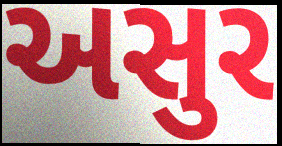
અસુર